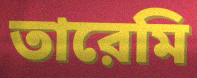
তারেমি